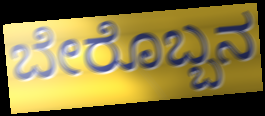
ಬೇರೊಬ್ಬನ